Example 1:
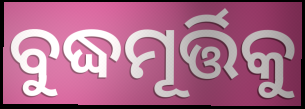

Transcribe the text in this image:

ବୁଦ୍ଧମୂର୍ତ୍ତିକୁ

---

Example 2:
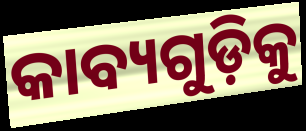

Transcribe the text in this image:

କାବ୍ୟଗୁଡ଼ିକୁ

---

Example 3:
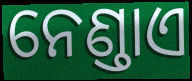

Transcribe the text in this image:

ନେଣ୍ଡାଏ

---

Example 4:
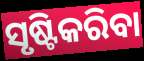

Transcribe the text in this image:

ସୃଷ୍ଟିକରିବା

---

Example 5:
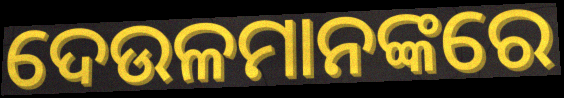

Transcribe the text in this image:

ଦେଉଳମାନଙ୍କରେ